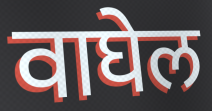
वाघेल